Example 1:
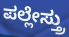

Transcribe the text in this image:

ಪಲ್ಲೇಸ್ತ್ರು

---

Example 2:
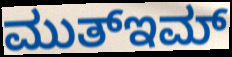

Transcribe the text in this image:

ಮುತ್ಇಮ್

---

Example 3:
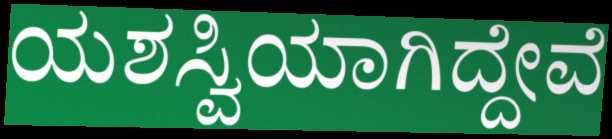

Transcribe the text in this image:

ಯಶಸ್ವಿಯಾಗಿದ್ದೇವೆ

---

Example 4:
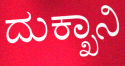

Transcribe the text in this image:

ದುಕ್ಖಾನಿ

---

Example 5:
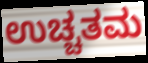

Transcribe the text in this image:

ಉಚ್ಚತಮ